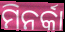
ମିନର୍କା